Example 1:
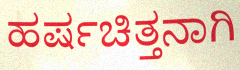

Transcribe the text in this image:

ಹರ್ಷಚಿತ್ತನಾಗಿ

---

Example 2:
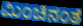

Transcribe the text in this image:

ಮಿಂಚಿನಂತೆ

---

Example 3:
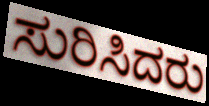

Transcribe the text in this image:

ಸುರಿಸಿದರು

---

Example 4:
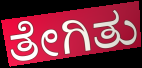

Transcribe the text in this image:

ತೇಗಿತು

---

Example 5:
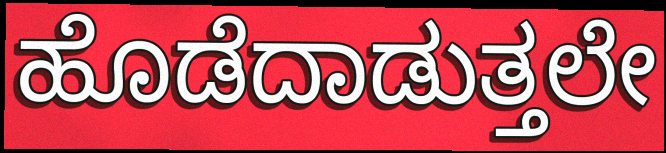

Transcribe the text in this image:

ಹೊಡೆದಾಡುತ್ತಲೇ